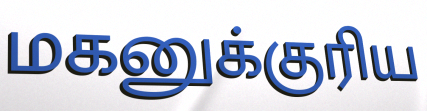
மகனுக்குரிய